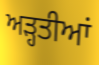
ਅੜ੍ਹਤੀਆਂ